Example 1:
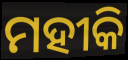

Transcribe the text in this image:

ମହୀକି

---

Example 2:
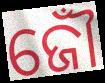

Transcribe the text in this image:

ଜୌଁ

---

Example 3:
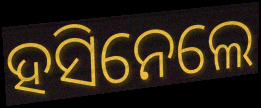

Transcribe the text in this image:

ହସିନେଲେ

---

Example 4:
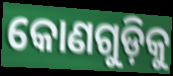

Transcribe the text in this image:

କୋଣଗୁଡ଼ିକୁ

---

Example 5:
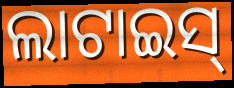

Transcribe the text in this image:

ଲାଟାଇସ୍